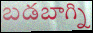
బడబాగ్ని